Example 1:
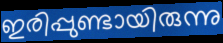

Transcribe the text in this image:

ഇരിപ്പുണ്ടായിരുന്നു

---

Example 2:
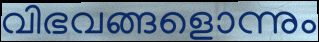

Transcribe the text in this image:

വിഭവങ്ങളൊന്നും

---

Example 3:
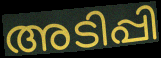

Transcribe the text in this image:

അടിപ്പി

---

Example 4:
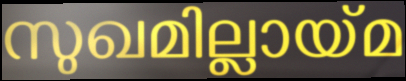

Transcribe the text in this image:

സുഖമില്ലായ്മ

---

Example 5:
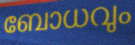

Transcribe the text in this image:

ബോധവും